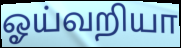
ஓய்வறியா